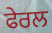
ਫੇਰਲ